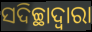
ସଦିଚ୍ଛାଦ୍ୱାରା